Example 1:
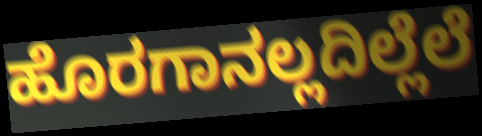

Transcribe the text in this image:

ಹೊರಗಾನಲ್ಲದಿಲ್ಲೆಲೆ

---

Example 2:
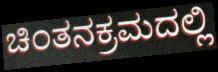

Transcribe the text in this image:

ಚಿಂತನಕ್ರಮದಲ್ಲಿ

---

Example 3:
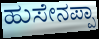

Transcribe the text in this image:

ಹುಸೇನಪ್ಪಾ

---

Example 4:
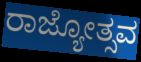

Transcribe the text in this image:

ರಾಜ್ಯೋತ್ಸವ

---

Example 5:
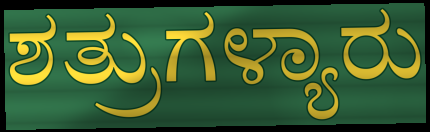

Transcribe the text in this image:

ಶತ್ರುಗಳ್ಯಾರು